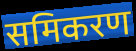
समिकरण